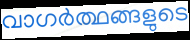
വാഗർത്ഥങ്ങളുടെ